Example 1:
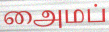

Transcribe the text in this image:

அைமப்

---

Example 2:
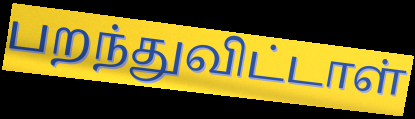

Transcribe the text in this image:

பறந்துவிட்டாள்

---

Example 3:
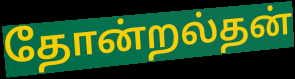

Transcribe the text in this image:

தோன்றல்தன்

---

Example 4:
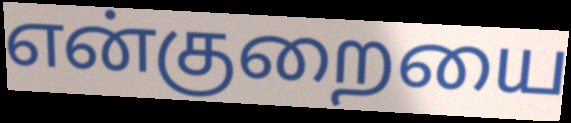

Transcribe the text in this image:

என்குறையை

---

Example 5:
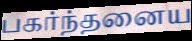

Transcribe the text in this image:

பகர்ந்தனைய